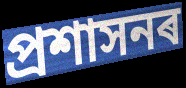
প্ৰশাসনৰ